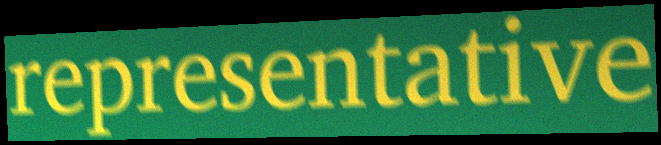
representative